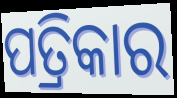
ପତ୍ରିକାର